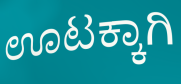
ಊಟಕ್ಕಾಗಿ